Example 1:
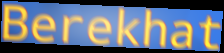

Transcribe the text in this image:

Berekhat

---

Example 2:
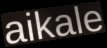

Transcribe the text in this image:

aikale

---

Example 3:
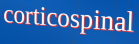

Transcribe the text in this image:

corticospinal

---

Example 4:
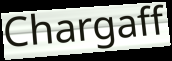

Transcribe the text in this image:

Chargaff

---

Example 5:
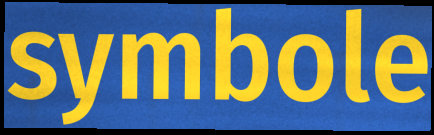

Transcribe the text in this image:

symbole